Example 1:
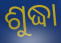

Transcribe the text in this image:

ଶୁଦ୍ଧା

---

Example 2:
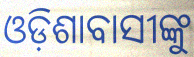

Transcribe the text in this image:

ଓଡ଼ିଶାବାସୀଙ୍କୁ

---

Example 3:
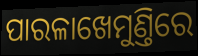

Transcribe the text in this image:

ପାରଳାଖେମୁଣ୍ତିରେ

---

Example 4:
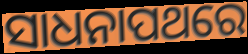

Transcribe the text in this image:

ସାଧନାପଥରେ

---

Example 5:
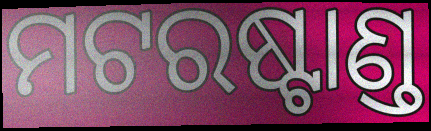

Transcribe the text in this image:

ମଟରଷ୍ଟାଣ୍ଡ